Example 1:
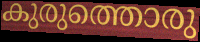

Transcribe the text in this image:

കുരുത്തൊരു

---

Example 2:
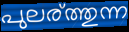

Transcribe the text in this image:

പുലര്ത്തുന്ന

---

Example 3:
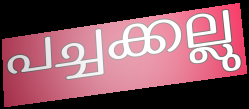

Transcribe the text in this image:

പച്ചക്കല്ലു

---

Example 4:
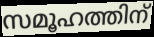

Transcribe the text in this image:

സമൂഹത്തിന്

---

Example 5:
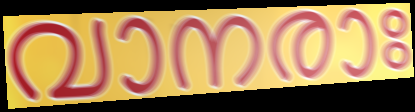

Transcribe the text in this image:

വാനരാഃ